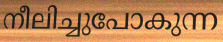
നീലിച്ചുപോകുന്ന